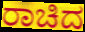
ರಾಚಿದ